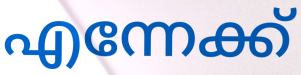
എന്നേക്ക്